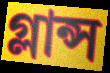
গ্লান্স